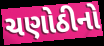
ચણોઠીનો